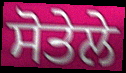
ਸੋਤੇਲੇ